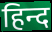
हिन्द